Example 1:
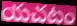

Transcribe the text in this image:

యచటం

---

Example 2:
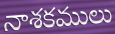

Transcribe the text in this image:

నాశకములు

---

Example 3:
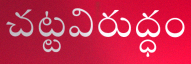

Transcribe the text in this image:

చట్టవిరుద్ధం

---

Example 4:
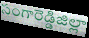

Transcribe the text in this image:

సంగారెడ్డిజిల్లా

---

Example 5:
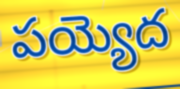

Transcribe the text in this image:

పయ్యెద